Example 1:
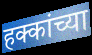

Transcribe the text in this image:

हक्कांच्या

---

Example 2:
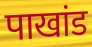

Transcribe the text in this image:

पाखांड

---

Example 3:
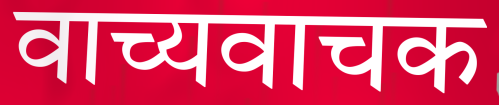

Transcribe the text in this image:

वाच्यवाचक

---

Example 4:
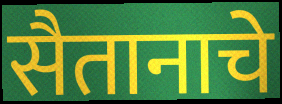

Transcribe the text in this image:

सैतानाचे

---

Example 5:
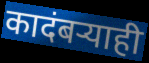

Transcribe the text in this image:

कादंबऱ्याही